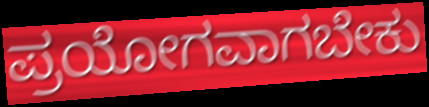
ಪ್ರಯೋಗವಾಗಬೇಕು